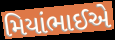
મિયાંભાઈએ